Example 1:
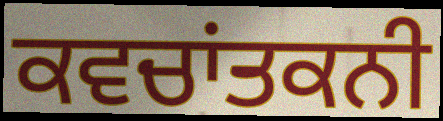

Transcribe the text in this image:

ਕਵਚਾਂਤਕਨੀ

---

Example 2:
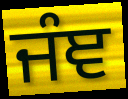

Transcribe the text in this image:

ਜੰਞ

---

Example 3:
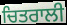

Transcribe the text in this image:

ਚਿਤਰਾਲੀ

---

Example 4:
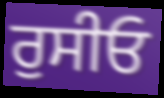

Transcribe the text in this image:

ਰੁਸੀਓ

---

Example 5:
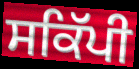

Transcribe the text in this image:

ਸਕਿੱਪੀ